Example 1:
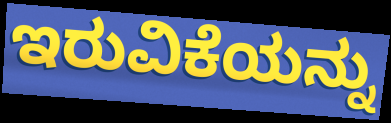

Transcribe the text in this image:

ಇರುವಿಕೆಯನ್ನು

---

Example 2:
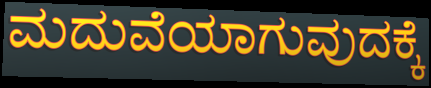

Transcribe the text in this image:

ಮದುವೆಯಾಗುವುದಕ್ಕೆ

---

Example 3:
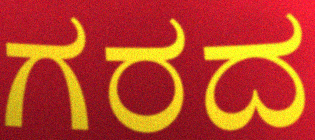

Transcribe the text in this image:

ಗರದ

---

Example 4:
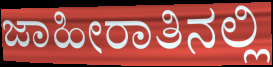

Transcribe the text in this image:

ಜಾಹೀರಾತಿನಲ್ಲಿ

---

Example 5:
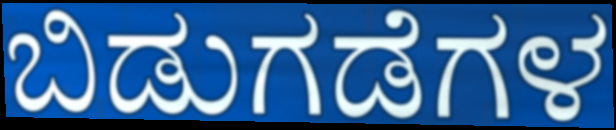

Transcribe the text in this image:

ಬಿಡುಗಡೆಗಳ